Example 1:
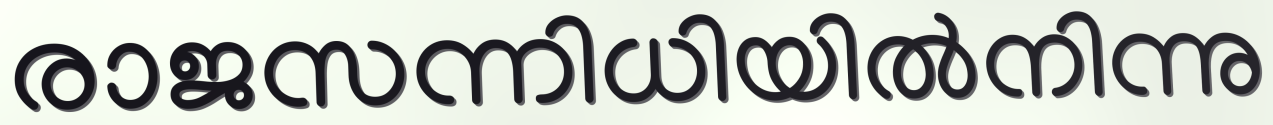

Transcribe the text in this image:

രാജസന്നിധിയിൽനിന്നു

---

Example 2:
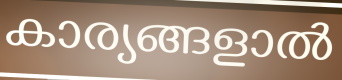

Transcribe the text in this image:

കാര്യങ്ങളാൽ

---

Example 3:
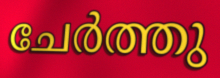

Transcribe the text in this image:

ചേർത്തു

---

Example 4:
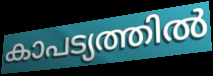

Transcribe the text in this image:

കാപട്യത്തിൽ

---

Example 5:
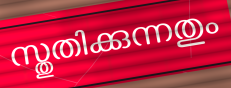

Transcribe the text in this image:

സ്തുതിക്കുന്നതും